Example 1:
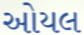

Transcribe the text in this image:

ઓયલ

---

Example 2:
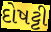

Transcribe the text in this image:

દોષટ્ટી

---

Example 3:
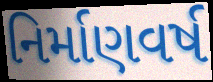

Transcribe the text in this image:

નિર્માણવર્ષ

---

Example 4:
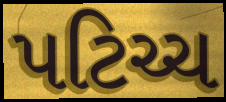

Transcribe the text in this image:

પટિચ્ચ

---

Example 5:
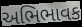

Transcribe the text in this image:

અભિભાવક